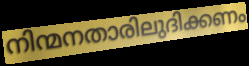
നിന്മനതാരിലുദിക്കണം